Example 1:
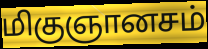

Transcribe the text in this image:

மிகுஞானசம்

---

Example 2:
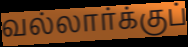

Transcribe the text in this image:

வல்லார்க்குப்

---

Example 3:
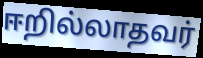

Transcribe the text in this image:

ஈறில்லாதவர்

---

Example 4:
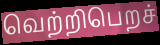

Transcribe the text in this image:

வெற்றிபெறச்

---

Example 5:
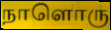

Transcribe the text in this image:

நாளொரு